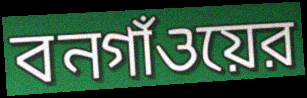
বনগাঁওয়ের